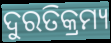
ଦୁରତିକ୍ରମ୍ୟ